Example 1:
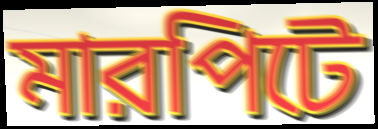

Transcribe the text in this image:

মারপিটে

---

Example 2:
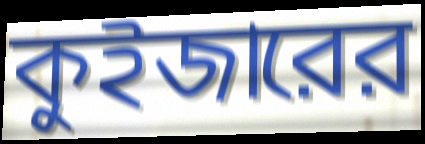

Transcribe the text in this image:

কুইজারের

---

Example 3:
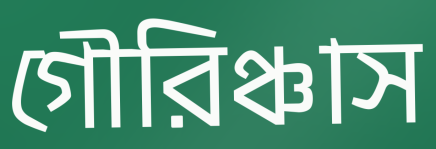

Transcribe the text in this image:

গৌরিঞ্চাস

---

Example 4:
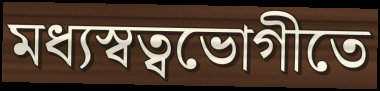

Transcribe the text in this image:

মধ্যস্বত্বভোগীতে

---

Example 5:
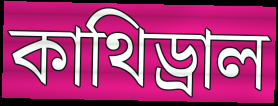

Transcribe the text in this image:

কাথিড্রাল